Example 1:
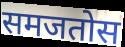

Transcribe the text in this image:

समजतोस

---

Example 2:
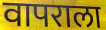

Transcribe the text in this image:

वापराला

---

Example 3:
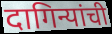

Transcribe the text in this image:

दागिन्यांची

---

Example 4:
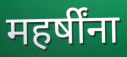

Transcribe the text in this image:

महर्षींना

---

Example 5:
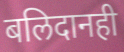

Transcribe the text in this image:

बलिदानही